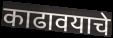
काढावयाचे